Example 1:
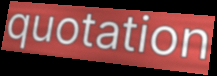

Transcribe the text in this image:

quotation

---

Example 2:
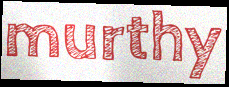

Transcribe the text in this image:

murthy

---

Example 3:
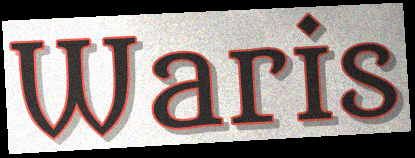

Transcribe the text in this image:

Waris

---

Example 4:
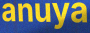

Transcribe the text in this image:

anuya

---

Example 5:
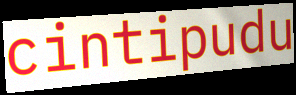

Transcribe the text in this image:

cintipudu